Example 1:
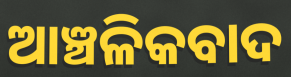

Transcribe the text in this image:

ଆଞ୍ଚଳିକବାଦ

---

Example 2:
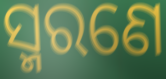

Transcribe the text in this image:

ସ୍ମରଣେ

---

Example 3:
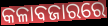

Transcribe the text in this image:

କଳାବଜାରରେ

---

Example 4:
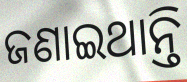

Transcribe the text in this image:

ଜଣାଇଥାନ୍ତି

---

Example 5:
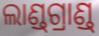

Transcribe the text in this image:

ଲାଣ୍ଡ୍‍ଗ୍ରାଣ୍ଡ୍